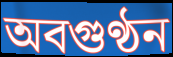
অবগুণ্ঠন